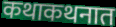
कथाकथनात